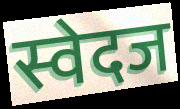
स्वेदज